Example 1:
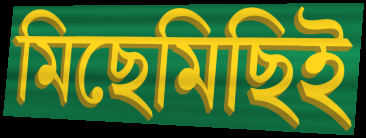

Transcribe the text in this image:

মিছেমিছিই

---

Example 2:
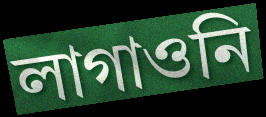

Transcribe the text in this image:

লাগাওনি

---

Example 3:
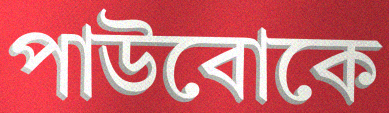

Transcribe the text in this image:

পাউবোকে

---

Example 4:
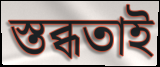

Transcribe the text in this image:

স্তব্ধতাই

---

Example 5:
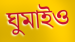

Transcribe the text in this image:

ঘুমাইও